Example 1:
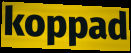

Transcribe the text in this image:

koppad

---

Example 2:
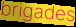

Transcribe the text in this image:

brigades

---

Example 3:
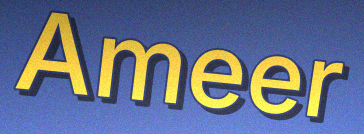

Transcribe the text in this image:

Ameer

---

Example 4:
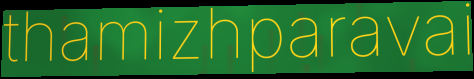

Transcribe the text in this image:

thamizhparavai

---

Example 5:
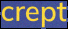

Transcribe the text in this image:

crept